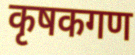
कृषकगण